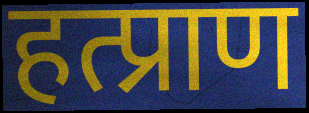
हत्प्राण